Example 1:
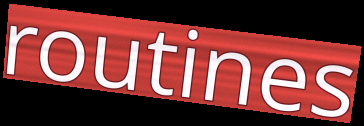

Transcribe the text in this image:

routines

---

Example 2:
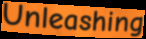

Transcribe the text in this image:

Unleashing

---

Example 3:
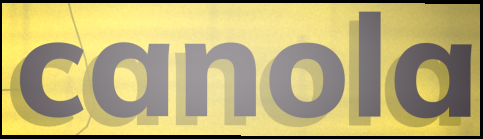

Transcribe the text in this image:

canola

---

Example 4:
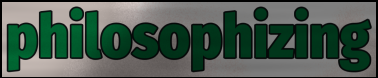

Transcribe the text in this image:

philosophizing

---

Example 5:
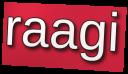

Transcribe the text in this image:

raagi